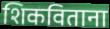
शिकविताना